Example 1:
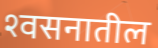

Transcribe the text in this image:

श्वसनातील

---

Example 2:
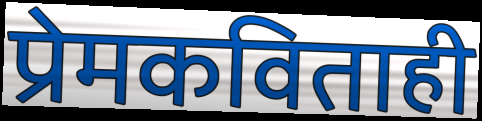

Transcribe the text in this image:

प्रेमकविताही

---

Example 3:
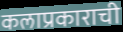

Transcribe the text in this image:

कलाप्रकाराची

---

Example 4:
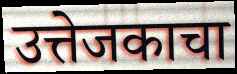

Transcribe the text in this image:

उत्तेजकाचा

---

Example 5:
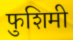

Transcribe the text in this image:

फुशिमी